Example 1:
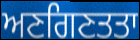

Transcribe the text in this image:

ਅਣਗਿਣਤਤਾ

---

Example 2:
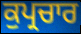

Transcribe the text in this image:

ਕੁਪ੍ਰਚਾਰ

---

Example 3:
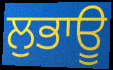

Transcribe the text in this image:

ਲੁਭਾਊ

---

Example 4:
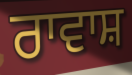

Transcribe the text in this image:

ਰਾਵਾਸ਼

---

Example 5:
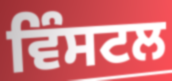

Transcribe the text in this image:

ਵਿੰਸਟਲ